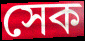
সেক